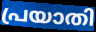
പ്രയാതി